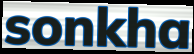
sonkha